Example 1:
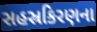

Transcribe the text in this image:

સહસ્રકિરણના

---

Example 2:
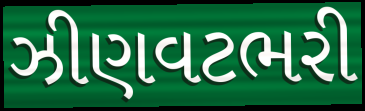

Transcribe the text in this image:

ઝીણવટભરી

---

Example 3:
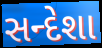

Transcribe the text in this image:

સન્દેશા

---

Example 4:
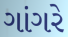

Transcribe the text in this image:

ગાંગરે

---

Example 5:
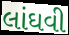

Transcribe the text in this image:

લાંઘવી